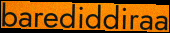
barediddiraa